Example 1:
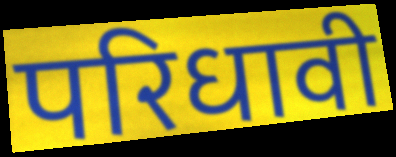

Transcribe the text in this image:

परिधावी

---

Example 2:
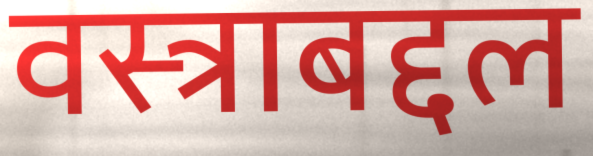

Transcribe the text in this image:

वस्त्राबद्दल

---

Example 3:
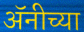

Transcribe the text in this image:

ॲनीच्या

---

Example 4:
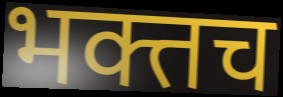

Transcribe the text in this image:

भक्तच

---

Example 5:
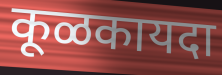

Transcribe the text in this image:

कूळकायदा